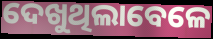
ଦେଖୁଥିଲାବେଳେ